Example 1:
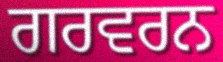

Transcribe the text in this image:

ਗਰਵਰਨ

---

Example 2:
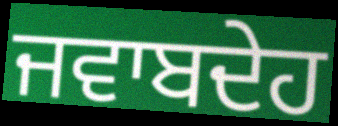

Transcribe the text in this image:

ਜਵਾਬਦੇਹ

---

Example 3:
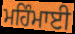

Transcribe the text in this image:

ਮਹਿੰਮਾਈ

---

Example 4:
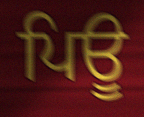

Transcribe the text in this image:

ਪਿਊ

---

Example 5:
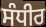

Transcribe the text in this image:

ਸੰਧੀਰ